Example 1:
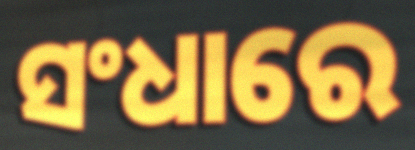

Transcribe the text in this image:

ସଂଧାରେ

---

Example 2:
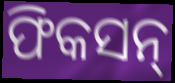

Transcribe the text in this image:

ଫିକସନ୍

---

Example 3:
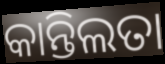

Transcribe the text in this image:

କାନ୍ତିଲତା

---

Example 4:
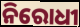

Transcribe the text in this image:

ନିରୋଧୀ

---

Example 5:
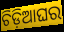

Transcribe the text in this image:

ଚିଡ଼ିଆଘର